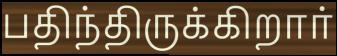
பதிந்திருக்கிறார்